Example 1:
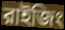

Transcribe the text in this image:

রাইজিং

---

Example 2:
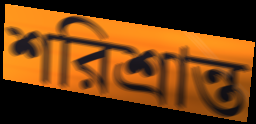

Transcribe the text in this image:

শরিশ্রান্ত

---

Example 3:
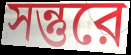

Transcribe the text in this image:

সন্তুরে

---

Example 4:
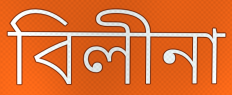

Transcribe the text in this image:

বিলীনা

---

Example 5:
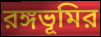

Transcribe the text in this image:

রঙ্গভূমির